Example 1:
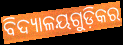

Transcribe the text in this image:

ବିଦ୍ୟାଳୟଗୁଡ଼ିକର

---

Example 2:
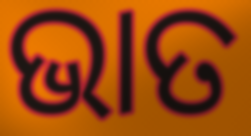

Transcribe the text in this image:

ଭାତ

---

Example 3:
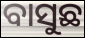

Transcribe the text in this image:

ବାସୁଛ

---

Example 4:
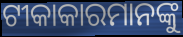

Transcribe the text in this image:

ଟୀକାକାରମାନଙ୍କୁ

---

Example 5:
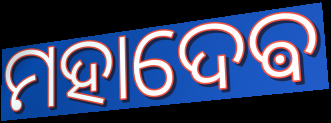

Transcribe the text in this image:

ମହାଦେଵ